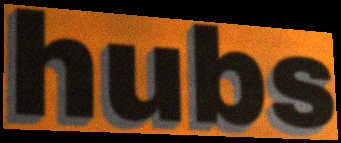
hubs